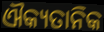
ଐକ୍ୟତାନିକ